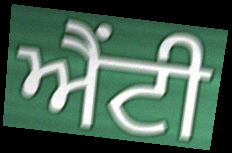
ਐਂਟੀ